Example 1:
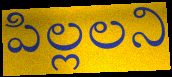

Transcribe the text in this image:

పిల్లలని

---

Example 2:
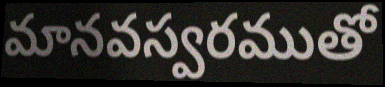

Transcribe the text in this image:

మానవస్వరముతో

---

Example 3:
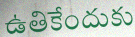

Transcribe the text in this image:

ఉతికేందుకు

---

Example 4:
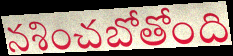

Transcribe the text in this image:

నశించబోతోంది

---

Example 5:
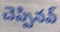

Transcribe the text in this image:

చెప్పినవ్